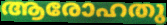
ആരോഹതു